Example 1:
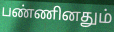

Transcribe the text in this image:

பண்ணினதும்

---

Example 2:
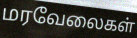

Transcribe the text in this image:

மரவேலைகள்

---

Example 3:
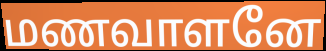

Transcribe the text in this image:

மணவாளனே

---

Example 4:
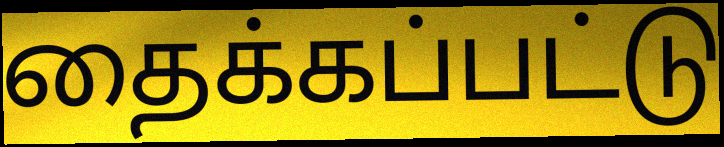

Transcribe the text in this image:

தைக்கப்பட்டு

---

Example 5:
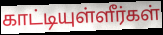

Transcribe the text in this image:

காட்டியுள்ளீர்கள்